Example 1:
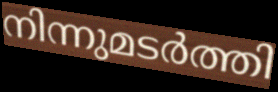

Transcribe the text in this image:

നിന്നുമടർത്തി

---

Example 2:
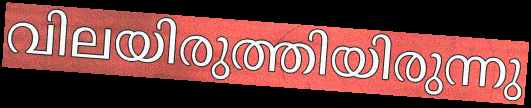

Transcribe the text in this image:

വിലയിരുത്തിയിരുന്നു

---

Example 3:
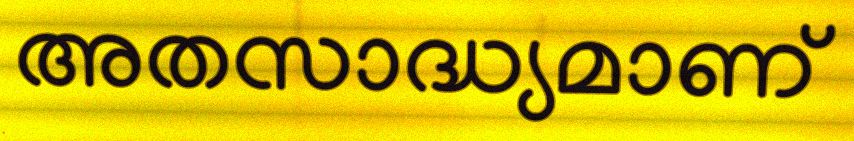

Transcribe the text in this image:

അതസാദ്ധ്യമാണ്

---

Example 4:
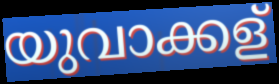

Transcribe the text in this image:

യുവാക്കള്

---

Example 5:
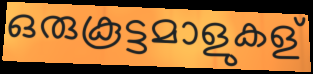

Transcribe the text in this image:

ഒരുകൂട്ടമാളുകള്